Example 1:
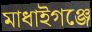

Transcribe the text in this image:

মাধাইগঞ্জে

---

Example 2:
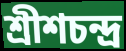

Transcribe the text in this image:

শ্রীশচন্দ্র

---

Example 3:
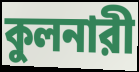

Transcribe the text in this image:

কুলনারী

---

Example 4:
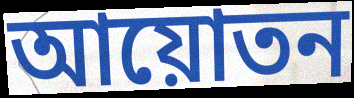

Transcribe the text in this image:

আয়োতন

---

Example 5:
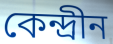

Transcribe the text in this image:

কেন্দ্রীন